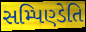
સમ્પિણ્ડેતિ